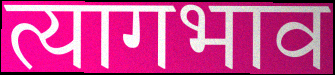
त्यागभाव